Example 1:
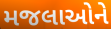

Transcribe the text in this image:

મજલાઓને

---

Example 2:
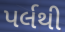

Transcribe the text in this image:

પર્લથી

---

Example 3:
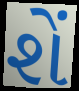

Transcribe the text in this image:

શેં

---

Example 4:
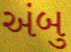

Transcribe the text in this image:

અંબુ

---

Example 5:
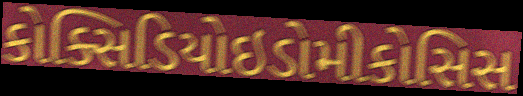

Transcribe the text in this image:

કોક્સિડિયોઇડોમીકોસિસ